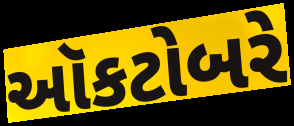
ઑકટોબરે